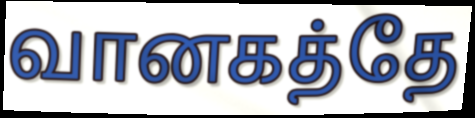
வானகத்தே